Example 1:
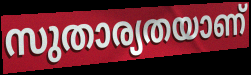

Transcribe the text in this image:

സുതാര്യതയാണ്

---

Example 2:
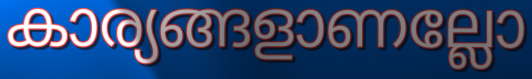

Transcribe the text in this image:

കാര്യങ്ങളാണല്ലോ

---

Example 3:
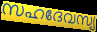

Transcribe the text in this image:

സഹദേവസ്യ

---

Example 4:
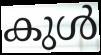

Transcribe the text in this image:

കുൾ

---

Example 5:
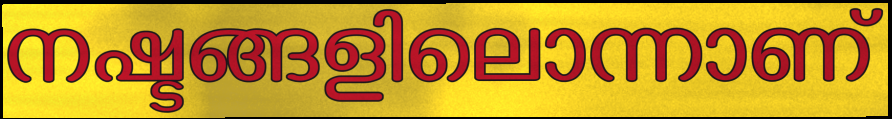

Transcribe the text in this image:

നഷ്ടങ്ങളിലൊന്നാണ്